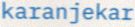
karanjekar